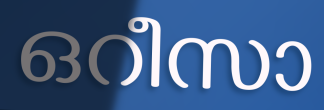
ഒറീസാ